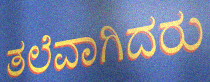
ತಲೆವಾಗಿದರು